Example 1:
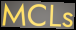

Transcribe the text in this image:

MCLs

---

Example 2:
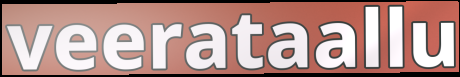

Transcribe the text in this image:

veerataallu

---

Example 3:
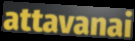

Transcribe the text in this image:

attavanai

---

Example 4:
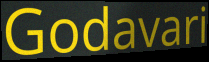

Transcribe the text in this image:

Godavari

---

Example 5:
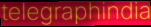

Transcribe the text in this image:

telegraphindia